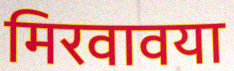
मिरवावया